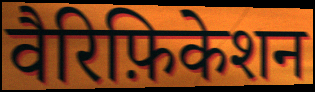
वैरिफ़िकेशन